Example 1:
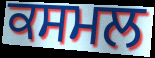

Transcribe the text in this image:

ਕਸਮਲ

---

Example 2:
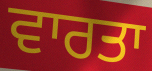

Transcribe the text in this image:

ਵਾਰਤਾ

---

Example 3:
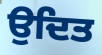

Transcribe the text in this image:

ਉਦਿਤ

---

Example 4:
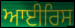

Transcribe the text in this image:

ਆਈਰਿਸ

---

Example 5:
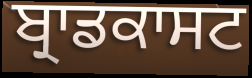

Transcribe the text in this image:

ਬ੍ਰਾਡਕਾਸਟ